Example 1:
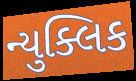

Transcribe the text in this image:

ન્યુક્લિક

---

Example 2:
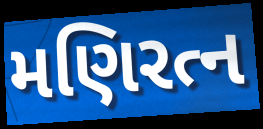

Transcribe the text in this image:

મણિરત્ન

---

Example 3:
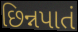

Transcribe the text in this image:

છિન્નપાતં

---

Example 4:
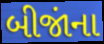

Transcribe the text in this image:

બીજાંના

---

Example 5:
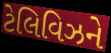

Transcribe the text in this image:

ટેલિવિઝને